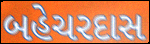
બહેચરદાસ